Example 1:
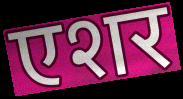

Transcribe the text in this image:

एशर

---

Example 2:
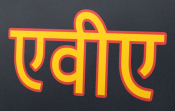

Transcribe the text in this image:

एवीए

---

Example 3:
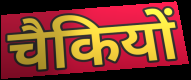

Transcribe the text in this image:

चैकियों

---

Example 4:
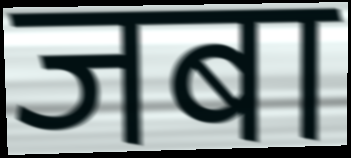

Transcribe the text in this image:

जबा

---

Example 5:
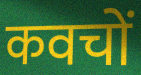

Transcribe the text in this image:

कवचों